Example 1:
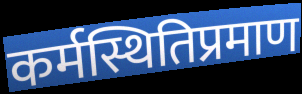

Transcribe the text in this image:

कर्मस्थितिप्रमाण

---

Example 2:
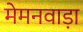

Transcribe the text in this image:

मेमनवाड़ा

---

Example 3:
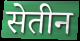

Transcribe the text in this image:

सेतीन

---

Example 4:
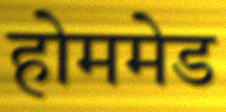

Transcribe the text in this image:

होममेड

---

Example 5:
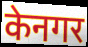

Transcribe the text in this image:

केनगर